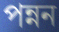
পন্নন